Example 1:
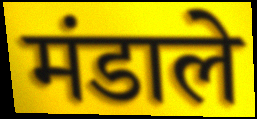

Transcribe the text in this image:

मंडाले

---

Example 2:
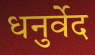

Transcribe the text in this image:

धनुर्वेद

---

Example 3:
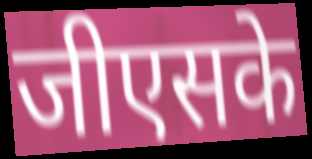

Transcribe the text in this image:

जीएसके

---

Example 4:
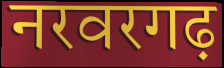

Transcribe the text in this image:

नरवरगढ़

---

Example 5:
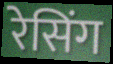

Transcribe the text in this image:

रेसिंग